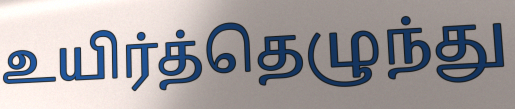
உயிர்த்தெழுந்து